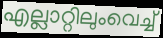
എല്ലാറ്റിലുംവെച്ച്